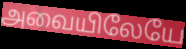
அவையிலேயே